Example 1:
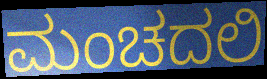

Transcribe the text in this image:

ಮಂಚದಲಿ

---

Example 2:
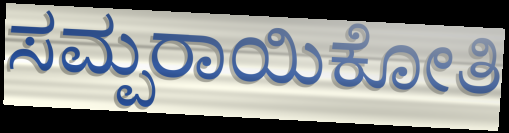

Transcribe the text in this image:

ಸಮ್ಪರಾಯಿಕೋತಿ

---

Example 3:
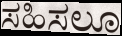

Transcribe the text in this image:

ಸಹಿಸಲೂ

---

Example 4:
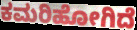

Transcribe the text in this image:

ಕಮರಿಹೋಗಿದೆ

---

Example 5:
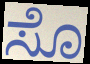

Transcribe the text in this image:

ಸೊ